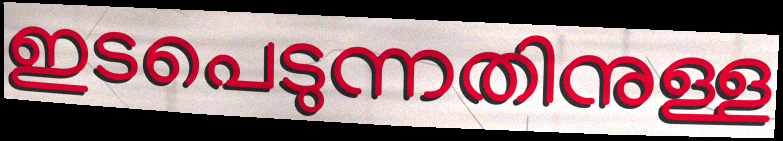
ഇടപെടുന്നതിനുള്ള